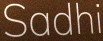
Sadhi